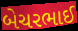
બેચરભાઈ